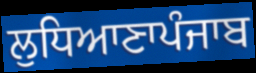
ਲੁਧਿਆਣਾਪੰਜਾਬ